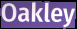
Oakley